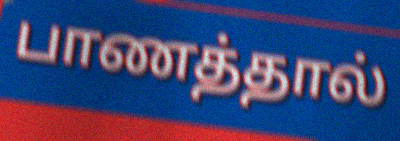
பாணத்தால்